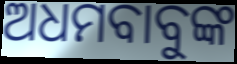
ଅଧମବାବୁଙ୍କ